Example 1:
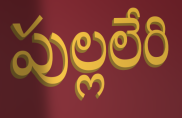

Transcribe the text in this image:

పుల్లలేరి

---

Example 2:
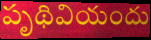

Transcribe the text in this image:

పృథివియందు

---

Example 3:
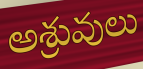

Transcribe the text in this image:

అశ్రువులు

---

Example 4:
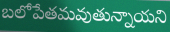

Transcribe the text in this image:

బలోపేతమవుతున్నాయని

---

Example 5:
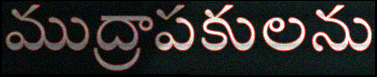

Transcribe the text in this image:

ముద్రాపకులను